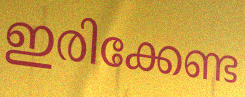
ഇരിക്കേണ്ട